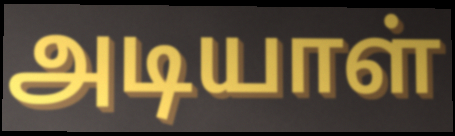
அடியாள்